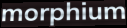
morphium